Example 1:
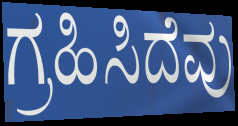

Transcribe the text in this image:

ಗ್ರಹಿಸಿದೆವು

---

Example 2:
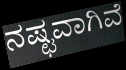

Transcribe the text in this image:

ನಷ್ಟವಾಗಿವೆ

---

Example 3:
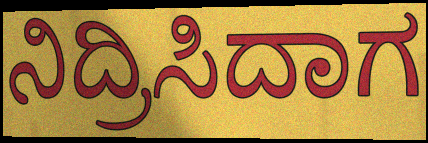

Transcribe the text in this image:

ನಿದ್ರಿಸಿದಾಗ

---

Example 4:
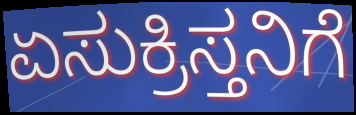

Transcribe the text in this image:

ಏಸುಕ್ರಿಸ್ತನಿಗೆ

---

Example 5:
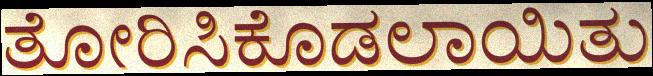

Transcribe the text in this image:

ತೋರಿಸಿಕೊಡಲಾಯಿತು